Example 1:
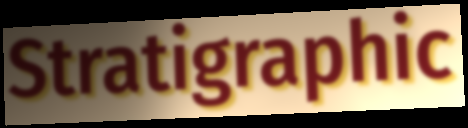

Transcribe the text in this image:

Stratigraphic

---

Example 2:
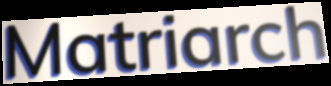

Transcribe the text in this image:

Matriarch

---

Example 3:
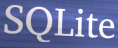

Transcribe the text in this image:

SQLite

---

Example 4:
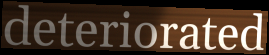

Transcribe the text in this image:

deteriorated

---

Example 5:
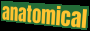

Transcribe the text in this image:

anatomical